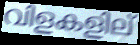
വിളകളില്